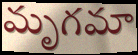
మృగమా